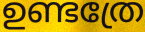
ഉണ്ടത്രേ